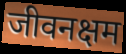
जीवनक्षम